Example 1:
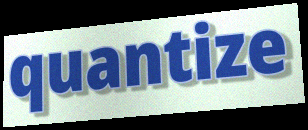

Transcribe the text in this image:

quantize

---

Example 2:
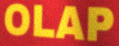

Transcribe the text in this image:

OLAP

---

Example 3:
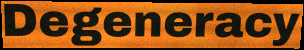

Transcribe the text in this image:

Degeneracy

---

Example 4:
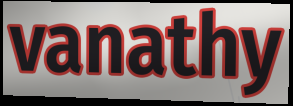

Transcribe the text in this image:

vanathy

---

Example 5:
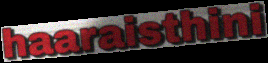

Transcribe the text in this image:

haaraisthini